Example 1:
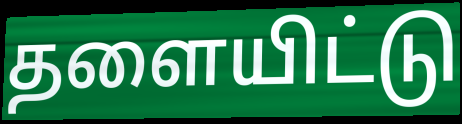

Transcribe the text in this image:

தளையிட்டு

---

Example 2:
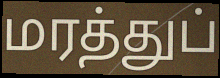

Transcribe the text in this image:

மரத்துப்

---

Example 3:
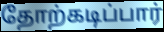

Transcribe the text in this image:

தோற்கடிப்பார்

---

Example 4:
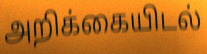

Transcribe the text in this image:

அறிக்கையிடல்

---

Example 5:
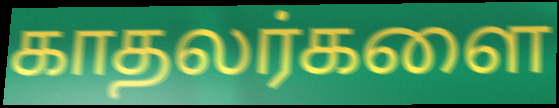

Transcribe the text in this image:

காதலர்களை